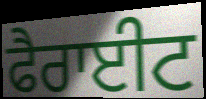
ਫੈਰਾਈਟ